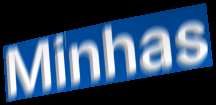
Minhas